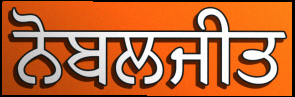
ਨੋਬਲਜੀਤ